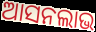
ଆସନଲାଭ